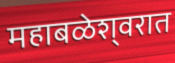
महाबळेश्वरात